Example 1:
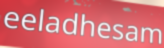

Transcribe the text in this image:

eeladhesam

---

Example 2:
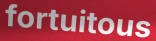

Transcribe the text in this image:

fortuitous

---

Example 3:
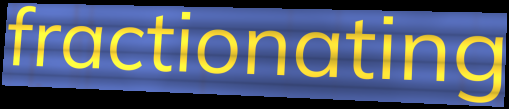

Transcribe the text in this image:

fractionating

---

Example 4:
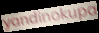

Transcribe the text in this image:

yandinokupa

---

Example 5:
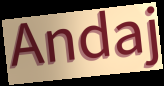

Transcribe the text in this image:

Andaj